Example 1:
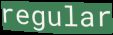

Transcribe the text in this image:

regular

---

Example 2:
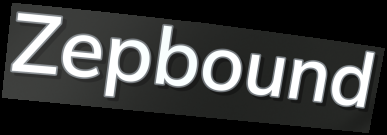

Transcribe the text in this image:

Zepbound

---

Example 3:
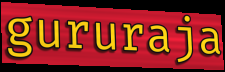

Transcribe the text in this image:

gururaja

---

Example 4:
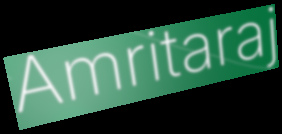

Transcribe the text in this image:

Amritaraj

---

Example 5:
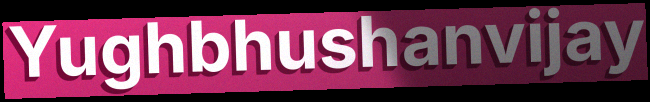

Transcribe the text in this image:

Yughbhushanvijay